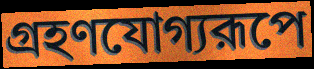
গ্রহণযোগ্যরূপে